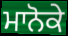
ਮਾਨੋਕੇ